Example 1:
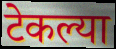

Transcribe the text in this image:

टेकल्या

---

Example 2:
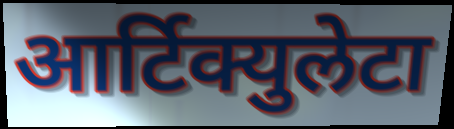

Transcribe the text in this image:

आर्टिक्युलेटा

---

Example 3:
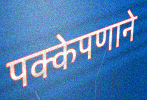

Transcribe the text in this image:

पक्केपणाने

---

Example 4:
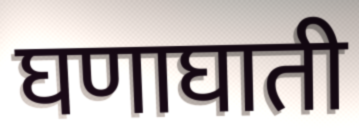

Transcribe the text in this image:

घणाघाती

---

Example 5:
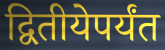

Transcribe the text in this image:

द्वितीयेपर्यंत